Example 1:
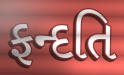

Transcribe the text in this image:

ફન્દતિ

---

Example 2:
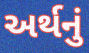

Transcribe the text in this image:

અર્થનું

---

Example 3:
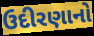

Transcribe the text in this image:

ઉદીરણાનો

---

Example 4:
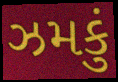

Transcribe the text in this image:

ઝમકું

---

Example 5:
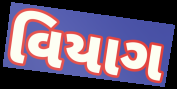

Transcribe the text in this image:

વિયાગ